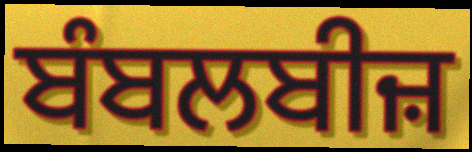
ਬੰਬਲਬੀਜ਼